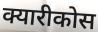
क्यारीकोस